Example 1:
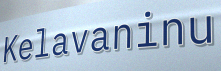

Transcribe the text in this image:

Kelavaninu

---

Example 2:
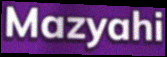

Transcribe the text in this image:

Mazyahi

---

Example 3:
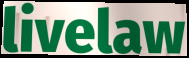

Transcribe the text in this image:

livelaw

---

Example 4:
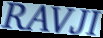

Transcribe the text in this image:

RAVJI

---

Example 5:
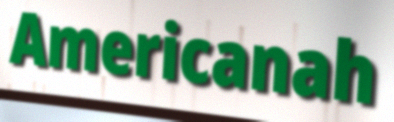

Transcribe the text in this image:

Americanah